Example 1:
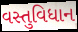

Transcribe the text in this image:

વસ્તુવિધાન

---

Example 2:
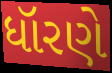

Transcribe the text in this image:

ધૉરણે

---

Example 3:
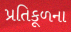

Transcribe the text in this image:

પ્રતિકૂળના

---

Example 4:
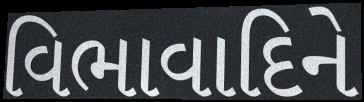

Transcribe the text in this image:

વિભાવાદિને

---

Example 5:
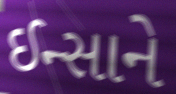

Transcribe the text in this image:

ઈન્સાને